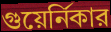
গুয়ের্নিকার